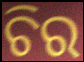
ଚିର